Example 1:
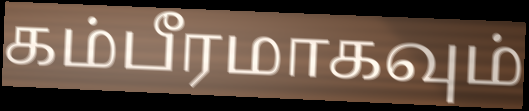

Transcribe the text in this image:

கம்பீரமாகவும்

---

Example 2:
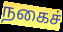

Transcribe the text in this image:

நகைச்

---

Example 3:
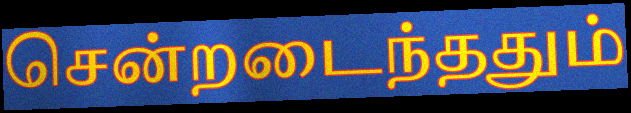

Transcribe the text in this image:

சென்றடைந்ததும்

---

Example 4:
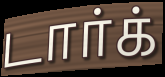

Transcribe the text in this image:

டார்க்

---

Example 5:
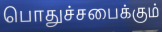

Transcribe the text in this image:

பொதுச்சபைக்கும்